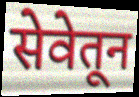
सेवेतून